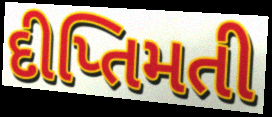
દીપ્તિમતી